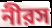
নীরস